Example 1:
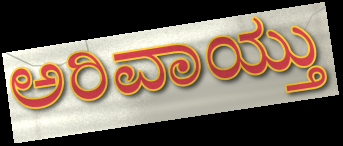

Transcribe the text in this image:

ಅರಿವಾಯ್ತು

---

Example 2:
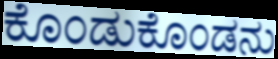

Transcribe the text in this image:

ಕೊಂಡುಕೊಂಡನು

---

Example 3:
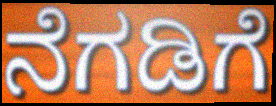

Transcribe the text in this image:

ನೆಗಡಿಗೆ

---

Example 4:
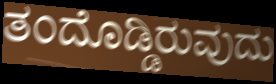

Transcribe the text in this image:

ತಂದೊಡ್ಡಿರುವುದು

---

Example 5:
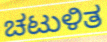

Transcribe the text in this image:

ಚಟುಳಿತ